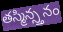
తస్మిన్స్తనం